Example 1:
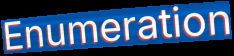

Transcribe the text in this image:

Enumeration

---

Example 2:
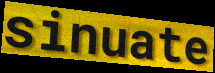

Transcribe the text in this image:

sinuate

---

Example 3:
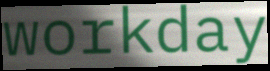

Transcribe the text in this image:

workday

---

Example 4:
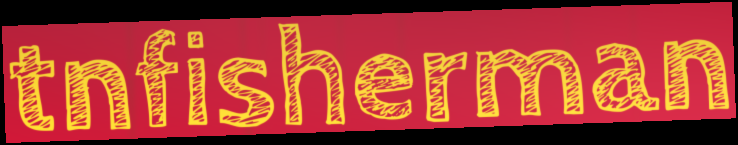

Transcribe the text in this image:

tnfisherman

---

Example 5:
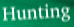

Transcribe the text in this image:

Hunting